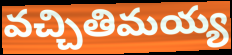
వచ్చితిమయ్య